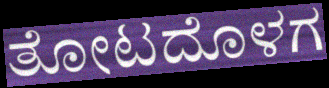
ತೋಟದೊಳಗ